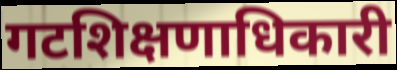
गटशिक्षणाधिकारी